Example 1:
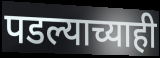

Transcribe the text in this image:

पडल्याच्याही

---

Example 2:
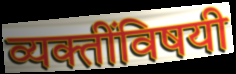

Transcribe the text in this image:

व्यक्तींविषयी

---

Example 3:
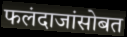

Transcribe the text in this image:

फलंदाजांसोबत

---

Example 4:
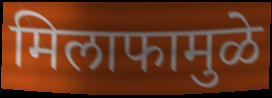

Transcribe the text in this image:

मिलाफामुळे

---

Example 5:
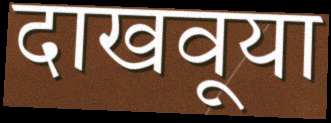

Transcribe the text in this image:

दाखवूया